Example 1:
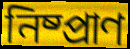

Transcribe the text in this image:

নিষ্প্রাণ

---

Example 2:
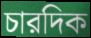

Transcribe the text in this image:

চারদিক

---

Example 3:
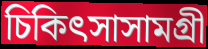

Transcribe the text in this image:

চিকিৎসাসামগ্রী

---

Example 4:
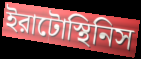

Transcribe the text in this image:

ইরাটোস্থিনিস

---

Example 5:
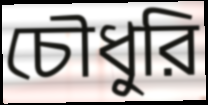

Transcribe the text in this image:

চৌধুরি